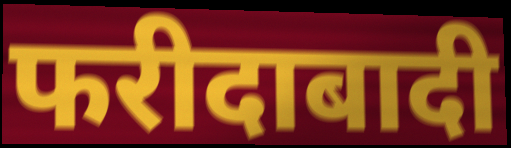
फरीदाबादी